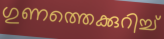
ഗുണത്തെക്കുറിച്ച്